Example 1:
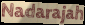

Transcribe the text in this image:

Nadarajah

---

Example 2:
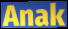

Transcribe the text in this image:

Anak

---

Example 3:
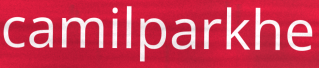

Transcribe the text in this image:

camilparkhe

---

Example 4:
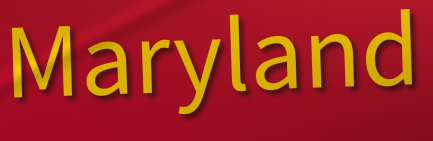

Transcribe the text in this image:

Maryland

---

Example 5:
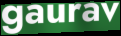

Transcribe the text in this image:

gaurav